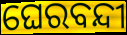
ଘେରବନ୍ଦୀ